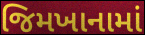
જિમખાનામાં